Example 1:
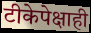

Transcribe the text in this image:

टीकेपेक्षाही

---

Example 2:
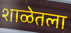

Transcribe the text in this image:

शाळेतला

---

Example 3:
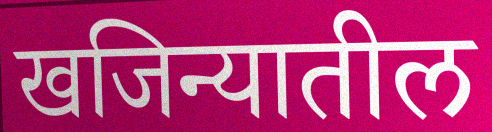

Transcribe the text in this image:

खजिन्यातील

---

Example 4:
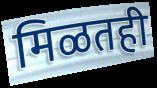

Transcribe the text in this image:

मिळतही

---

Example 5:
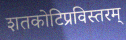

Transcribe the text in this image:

शतकोटिप्रविस्तरम्